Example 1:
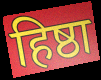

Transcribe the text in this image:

हिष्ठा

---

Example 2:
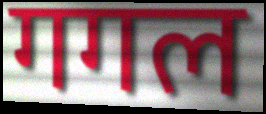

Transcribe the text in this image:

गगल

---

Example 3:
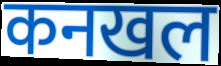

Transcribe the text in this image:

कनखल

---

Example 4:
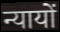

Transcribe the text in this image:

न्यायों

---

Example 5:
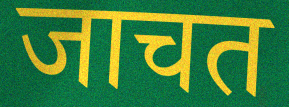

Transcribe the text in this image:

जाचत